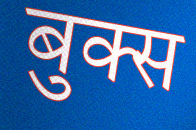
बुक्स